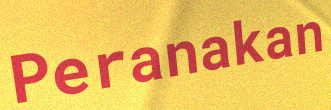
Peranakan